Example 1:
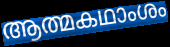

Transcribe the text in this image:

ആത്മകഥാംശം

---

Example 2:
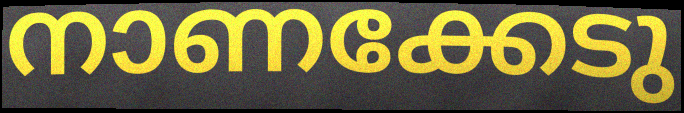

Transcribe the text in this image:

നാണക്കേടു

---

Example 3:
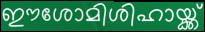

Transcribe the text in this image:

ഈശോമിശിഹായ്ക്ക്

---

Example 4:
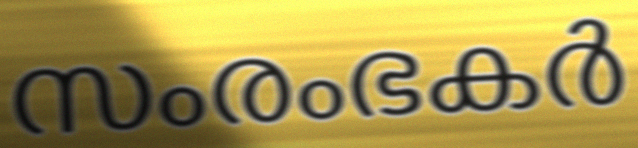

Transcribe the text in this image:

സംരംഭകർ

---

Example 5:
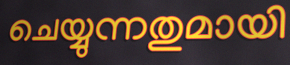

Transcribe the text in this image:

ചെയ്യുന്നതുമായി